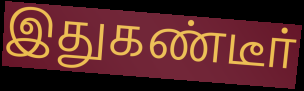
இதுகண்டீர்